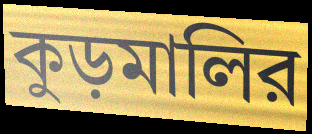
কুড়মালির